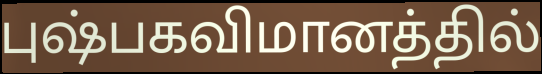
புஷ்பகவிமானத்தில்